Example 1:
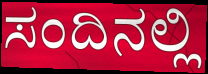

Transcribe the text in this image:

ಸಂದಿನಲ್ಲಿ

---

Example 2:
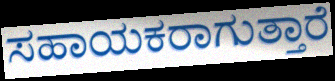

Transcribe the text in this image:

ಸಹಾಯಕರಾಗುತ್ತಾರೆ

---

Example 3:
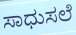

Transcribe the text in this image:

ಸಾಧುಸಲೆ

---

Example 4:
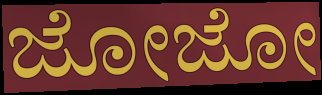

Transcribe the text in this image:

ಜೋಜೋ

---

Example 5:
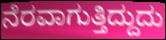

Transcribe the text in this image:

ನೆರವಾಗುತ್ತಿದ್ದುದು